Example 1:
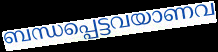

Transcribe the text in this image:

ബന്ധപ്പെട്ടവയാണവ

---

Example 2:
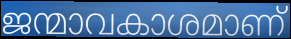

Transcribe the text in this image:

ജന്മാവകാശമാണ്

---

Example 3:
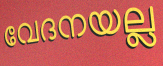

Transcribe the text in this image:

വേദനയല്ല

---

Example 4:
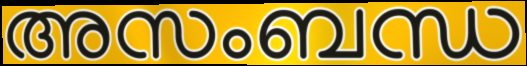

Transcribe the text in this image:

അസംബന്ധ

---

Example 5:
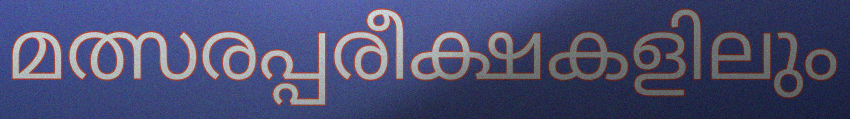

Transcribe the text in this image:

മത്സരപ്പരീക്ഷകളിലും